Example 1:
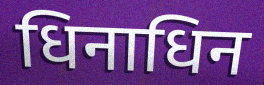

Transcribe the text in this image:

धिनाधिन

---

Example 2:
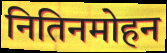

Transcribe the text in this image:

नितिनमोहन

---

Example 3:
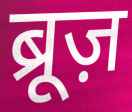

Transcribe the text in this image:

ब्रूज़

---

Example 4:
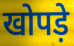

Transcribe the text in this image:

खोपड़े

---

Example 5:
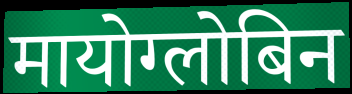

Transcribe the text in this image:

मायोग्लोबिन